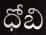
ధోబి